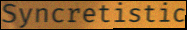
Syncretistic